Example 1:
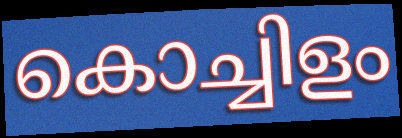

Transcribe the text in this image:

കൊച്ചിളം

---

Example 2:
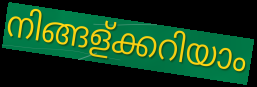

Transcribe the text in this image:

നിങ്ങള്ക്കറിയാം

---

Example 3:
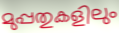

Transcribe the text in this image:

മുപ്പതുകളിലും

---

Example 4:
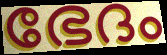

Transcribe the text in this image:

ഭേദം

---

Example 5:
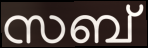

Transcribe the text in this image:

സബ്